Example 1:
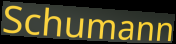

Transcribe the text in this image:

Schumann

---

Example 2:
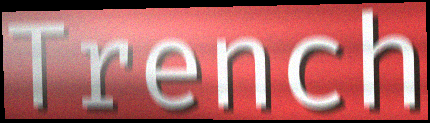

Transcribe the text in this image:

Trench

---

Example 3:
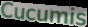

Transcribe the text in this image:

Cucumis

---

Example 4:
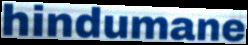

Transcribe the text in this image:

hindumane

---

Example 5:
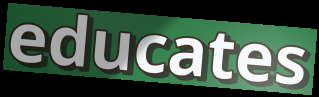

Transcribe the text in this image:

educates